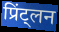
प्रिंट्लन